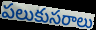
పలుకుసరాలు